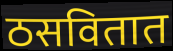
ठसवितात